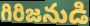
గిరిజనుడి